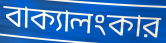
বাক্যালংকার